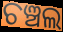
ଚଞ୍ଚଲ